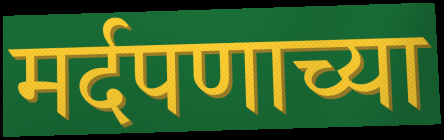
मर्दपणाच्या